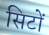
सिटों